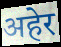
अहेर